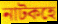
নাটকহে